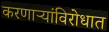
करणाऱ्यांविरोधात